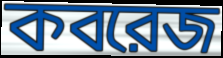
কবরেজ